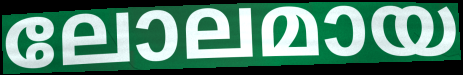
ലോലമായ